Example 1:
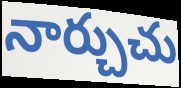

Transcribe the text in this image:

నార్చుచు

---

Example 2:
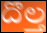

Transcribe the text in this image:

దొల్త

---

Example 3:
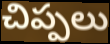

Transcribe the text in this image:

చిప్పలు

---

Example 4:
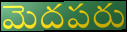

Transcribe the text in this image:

మెదపరు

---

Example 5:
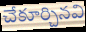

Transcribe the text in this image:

చేకూర్చినవి